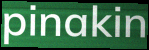
pinakin